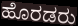
ಹೊರಡರು